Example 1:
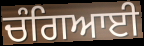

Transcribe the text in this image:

ਚੰਗਿਆਈ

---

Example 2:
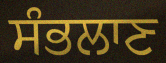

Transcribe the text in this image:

ਸੰਭਲਾਣ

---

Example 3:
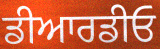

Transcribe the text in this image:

ਡੀਆਰਡੀਓ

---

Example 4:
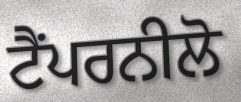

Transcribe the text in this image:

ਟੈਂਪਰਨੀਲੋ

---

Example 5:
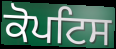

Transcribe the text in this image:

ਕੋਪਟਿਸ